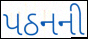
પઠનની